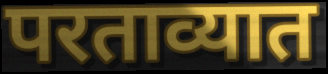
परताव्यात